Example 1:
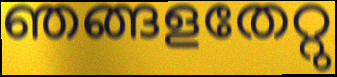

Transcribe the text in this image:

ഞങ്ങളതേറ്റു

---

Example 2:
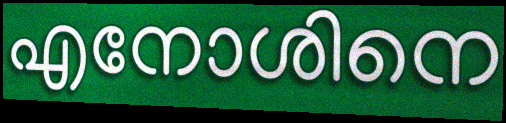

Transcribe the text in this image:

എനോശിനെ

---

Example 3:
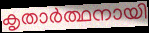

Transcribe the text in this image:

കൃതാർത്ഥനായി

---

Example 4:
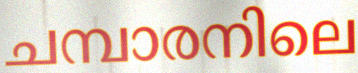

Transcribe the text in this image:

ചമ്പാരനിലെ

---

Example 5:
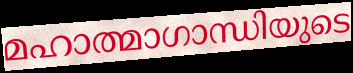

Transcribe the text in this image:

മഹാത്മാഗാന്ധിയുടെ